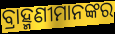
ବ୍ରାହ୍ମଣୀମାନଙ୍କର